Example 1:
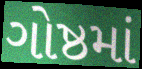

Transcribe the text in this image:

ગોષ્ઠમાં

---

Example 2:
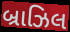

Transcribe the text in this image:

બ્રાઝિલ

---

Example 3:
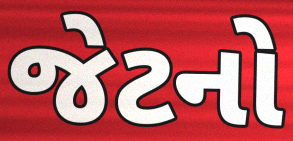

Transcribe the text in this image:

જેટનો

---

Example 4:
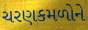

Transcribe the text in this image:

ચરણકમળોને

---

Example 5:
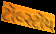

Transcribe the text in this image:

ટૉલ્સ્ટૉય